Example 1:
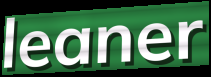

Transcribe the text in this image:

leaner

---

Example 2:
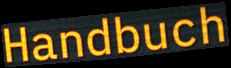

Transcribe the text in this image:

Handbuch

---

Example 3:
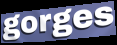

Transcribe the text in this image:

gorges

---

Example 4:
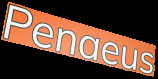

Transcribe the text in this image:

Penaeus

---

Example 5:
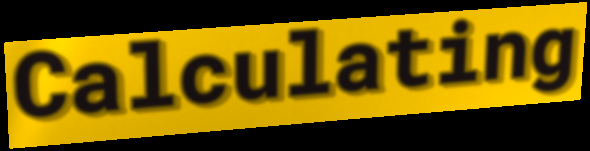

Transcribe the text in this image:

Calculating